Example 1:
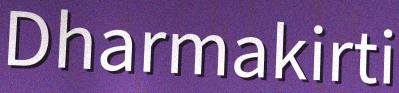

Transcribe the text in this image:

Dharmakirti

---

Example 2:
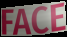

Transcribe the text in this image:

FACE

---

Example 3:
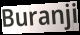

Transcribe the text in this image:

Buranji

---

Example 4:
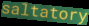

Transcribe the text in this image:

saltatory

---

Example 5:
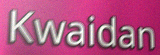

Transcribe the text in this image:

Kwaidan